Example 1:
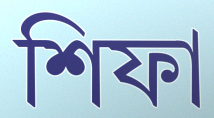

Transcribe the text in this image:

শিফা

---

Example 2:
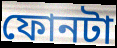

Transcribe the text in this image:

ফোনটা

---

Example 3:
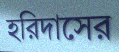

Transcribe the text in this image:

হরিদাসের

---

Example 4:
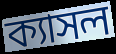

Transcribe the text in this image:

ক্যাসল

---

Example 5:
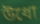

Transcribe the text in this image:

উধো